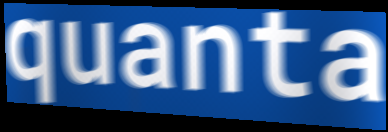
quanta